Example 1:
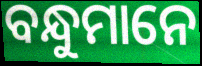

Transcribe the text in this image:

ବନ୍ଧୁମାନେ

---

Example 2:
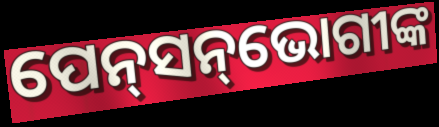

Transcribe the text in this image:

ପେନ୍‌ସନ୍‌ଭୋଗୀଙ୍କ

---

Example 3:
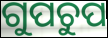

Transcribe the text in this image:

ଗୁପଚୁପ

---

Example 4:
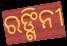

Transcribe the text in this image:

ରଙ୍ଗିନୀ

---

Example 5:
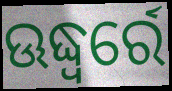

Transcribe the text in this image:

ଊଦ୍ଧ୍ୱର୍ରେ